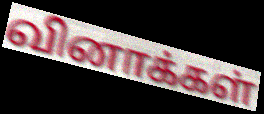
வினாக்கள்